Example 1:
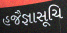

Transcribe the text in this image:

હજૈજ્ઞાસૂચિ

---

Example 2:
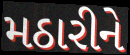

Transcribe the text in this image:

મઠારીને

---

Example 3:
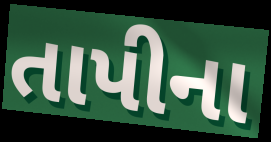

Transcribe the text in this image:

તાપીના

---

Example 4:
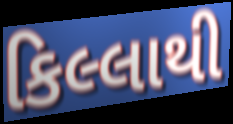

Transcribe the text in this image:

કિલ્લાથી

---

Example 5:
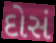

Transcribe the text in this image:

દોસં